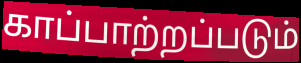
காப்பாற்றப்படும்